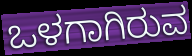
ಒಳಗಾಗಿರುವ